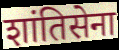
शांतिसेना